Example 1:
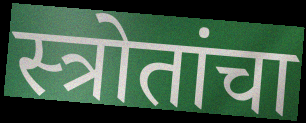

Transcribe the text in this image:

स्त्रोतांचा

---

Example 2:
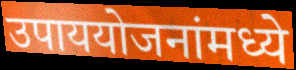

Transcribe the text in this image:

उपाययोजनांमध्ये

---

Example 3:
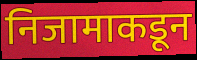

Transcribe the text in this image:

निजामाकडून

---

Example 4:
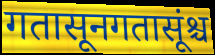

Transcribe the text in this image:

गतासूनगतासूंश्च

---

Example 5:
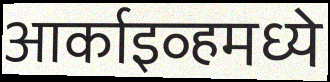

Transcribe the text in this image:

आर्काइव्हमध्ये